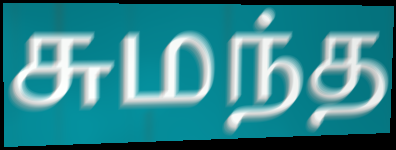
சுமந்த